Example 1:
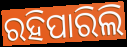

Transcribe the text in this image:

ରହିପାରିଲି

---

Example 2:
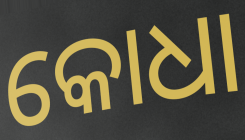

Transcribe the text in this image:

କୋଧା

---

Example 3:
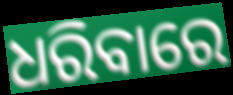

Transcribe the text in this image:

ଧରିବାରେ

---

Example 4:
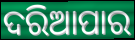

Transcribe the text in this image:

ଦରିଆପାର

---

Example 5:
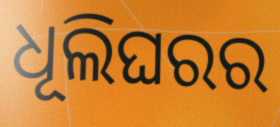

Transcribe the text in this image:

ଧୂଲିଘରର